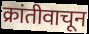
क्रांतीवाचून